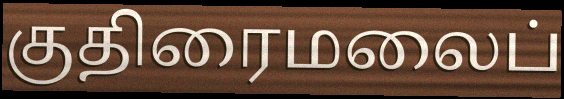
குதிரைமலைப்